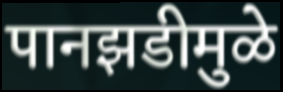
पानझडीमुळे